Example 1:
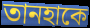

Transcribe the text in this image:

তানহাকে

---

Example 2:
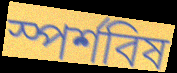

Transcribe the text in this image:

স্পর্শবিষ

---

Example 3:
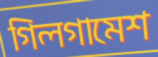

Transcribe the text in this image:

গিলগামেশ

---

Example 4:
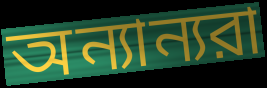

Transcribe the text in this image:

অন্যান্যরা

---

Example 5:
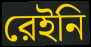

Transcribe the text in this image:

রেইনি